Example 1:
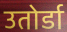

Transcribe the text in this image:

उतोर्डा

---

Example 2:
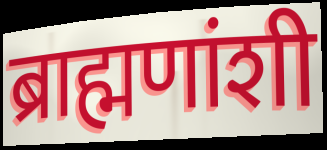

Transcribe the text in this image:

ब्राह्मणांशी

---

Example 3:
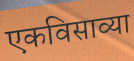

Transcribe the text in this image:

एकविसाव्या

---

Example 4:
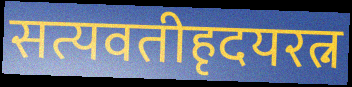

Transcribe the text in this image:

सत्यवतीहृदयरत्न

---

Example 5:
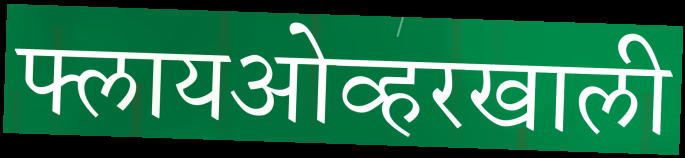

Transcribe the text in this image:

फ्लायओव्हरखाली